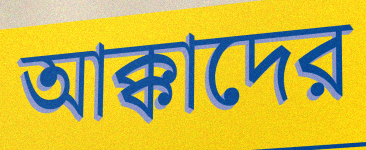
আক্কাদের